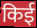
किई